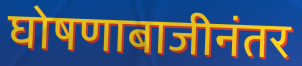
घोषणाबाजीनंतर